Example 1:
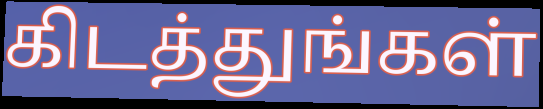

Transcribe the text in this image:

கிடத்துங்கள்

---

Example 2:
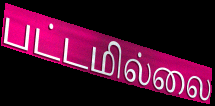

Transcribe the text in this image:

பட்டமில்லை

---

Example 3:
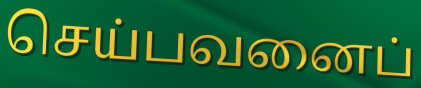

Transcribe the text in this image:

செய்பவனைப்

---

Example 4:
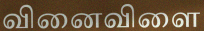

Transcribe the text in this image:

வினைவிளை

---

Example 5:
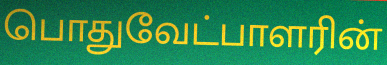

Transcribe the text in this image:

பொதுவேட்பாளரின்